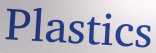
Plastics